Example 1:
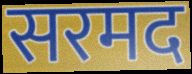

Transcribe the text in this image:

सरमद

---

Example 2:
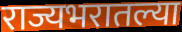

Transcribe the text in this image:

राज्यभरातल्या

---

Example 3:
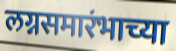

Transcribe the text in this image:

लग्नसमारंभाच्या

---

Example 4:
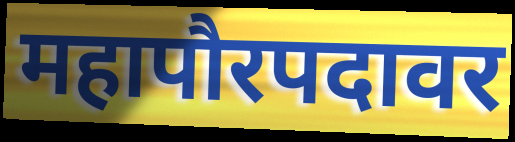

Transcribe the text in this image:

महापौरपदावर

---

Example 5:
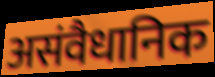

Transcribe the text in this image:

असंवैधानिक